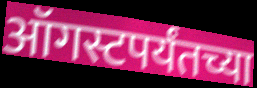
ऑगस्टपर्यंतच्या